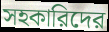
সহকারিদের